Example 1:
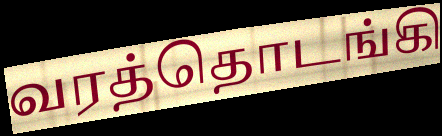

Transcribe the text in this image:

வரத்தொடங்கி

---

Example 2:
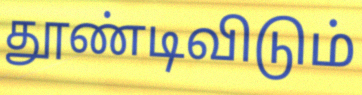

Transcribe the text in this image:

தூண்டிவிடும்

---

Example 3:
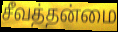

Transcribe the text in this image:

சீவத்தன்மை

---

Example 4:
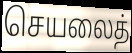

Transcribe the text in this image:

செயலைத்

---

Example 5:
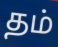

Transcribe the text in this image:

தம்